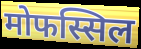
मोफस्सिल